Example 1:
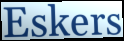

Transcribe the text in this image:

Eskers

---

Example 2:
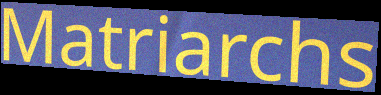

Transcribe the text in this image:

Matriarchs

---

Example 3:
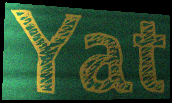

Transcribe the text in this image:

Yat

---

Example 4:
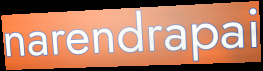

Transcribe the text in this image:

narendrapai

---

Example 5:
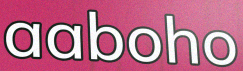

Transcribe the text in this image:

aaboho